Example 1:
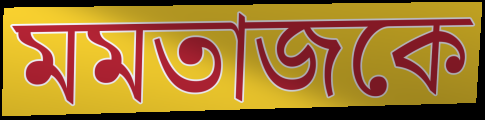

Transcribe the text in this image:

মমতাজকে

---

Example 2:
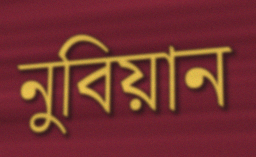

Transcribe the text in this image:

নুবিয়ান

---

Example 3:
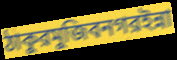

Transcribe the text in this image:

ঠাকুরমুজিবনগরইন্না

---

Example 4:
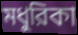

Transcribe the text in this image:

মধুরিকা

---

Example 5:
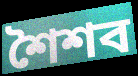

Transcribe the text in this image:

শৈশব